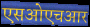
एसओएचआर